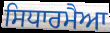
ਸਿਧਾਰਮੈਆ